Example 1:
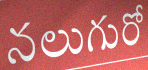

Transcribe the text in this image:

నలుగురో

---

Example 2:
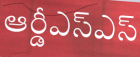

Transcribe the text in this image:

ఆర్డీఎస్ఎస్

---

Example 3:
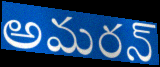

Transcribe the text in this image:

అమరన్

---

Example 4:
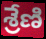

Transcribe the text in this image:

శ్రేణి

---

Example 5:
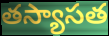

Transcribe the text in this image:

తస్యాసత